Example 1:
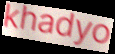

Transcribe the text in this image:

khadyo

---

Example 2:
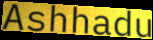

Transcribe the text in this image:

Ashhadu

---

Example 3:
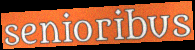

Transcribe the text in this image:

senioribus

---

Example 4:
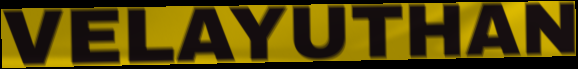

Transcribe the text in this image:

VELAYUTHAN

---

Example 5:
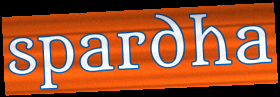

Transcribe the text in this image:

spardha